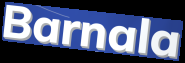
Barnala